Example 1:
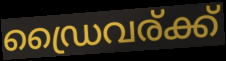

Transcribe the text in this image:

ഡ്രൈവര്ക്ക്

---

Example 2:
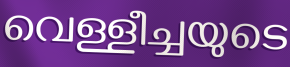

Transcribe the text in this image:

വെള്ളീച്ചയുടെ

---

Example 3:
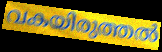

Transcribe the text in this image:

വകയിരുത്തൽ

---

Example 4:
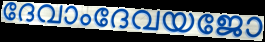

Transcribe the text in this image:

ദേവാംദേവയജോ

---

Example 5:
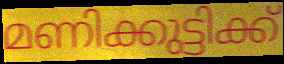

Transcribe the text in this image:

മണിക്കുട്ടിക്ക്